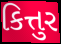
કિત્તુર